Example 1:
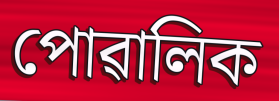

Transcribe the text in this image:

পোৱালিক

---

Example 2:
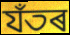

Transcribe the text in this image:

যঁতৰ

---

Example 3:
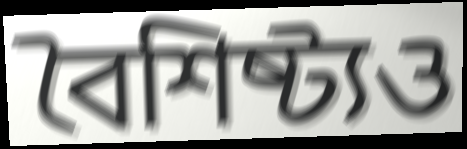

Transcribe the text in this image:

বৈশিষ্ট্যও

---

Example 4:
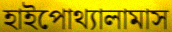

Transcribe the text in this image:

হাইপোথ্যালামাস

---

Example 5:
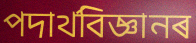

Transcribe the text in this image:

পদাৰ্থবিজ্ঞানৰ